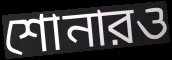
শোনারও